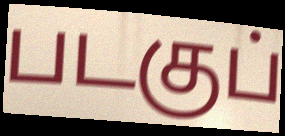
படகுப்